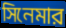
সিনেমার